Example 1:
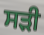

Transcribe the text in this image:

ਸੜੀ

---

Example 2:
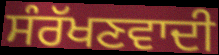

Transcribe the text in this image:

ਸੰਰੱਖਣਵਾਦੀ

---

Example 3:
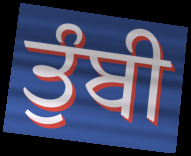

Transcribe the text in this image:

ਤੁੰਬੀ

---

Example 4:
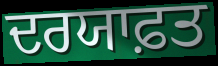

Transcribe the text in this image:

ਦਰਯਾਫ਼ਤ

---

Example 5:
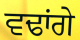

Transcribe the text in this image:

ਵਢਾਂਗੇ